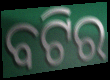
ବଟିର